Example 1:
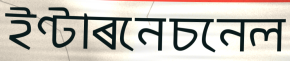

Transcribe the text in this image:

ইণ্টাৰনেচনেল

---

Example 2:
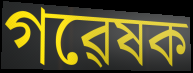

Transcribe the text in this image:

গৱেষক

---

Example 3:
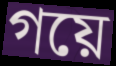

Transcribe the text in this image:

গয়ে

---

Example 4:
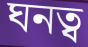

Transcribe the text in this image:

ঘনত্ব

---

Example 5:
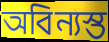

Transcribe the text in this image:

অবিন্যস্ত